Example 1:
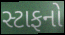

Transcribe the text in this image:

સ્ટાફનો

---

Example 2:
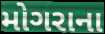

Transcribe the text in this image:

મોગરાના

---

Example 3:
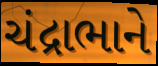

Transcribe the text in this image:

ચંદ્રાભાને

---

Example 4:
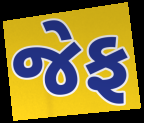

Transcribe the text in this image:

જેફ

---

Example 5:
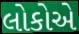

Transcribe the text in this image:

લોકોએ